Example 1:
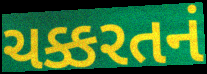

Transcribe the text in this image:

ચક્કરતનં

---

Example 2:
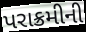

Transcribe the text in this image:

પરાક્રમીની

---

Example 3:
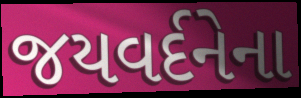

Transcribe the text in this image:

જયવર્દનેના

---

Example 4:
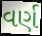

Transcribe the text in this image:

વર્ણ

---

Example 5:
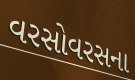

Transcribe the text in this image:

વરસોવરસના